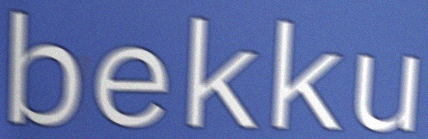
bekku